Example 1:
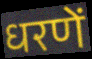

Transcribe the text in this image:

धरणें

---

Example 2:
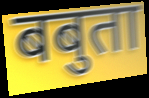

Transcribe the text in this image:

बबुता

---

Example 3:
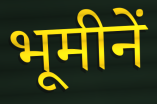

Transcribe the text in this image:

भूमीनें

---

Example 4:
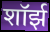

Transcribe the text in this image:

शॉर्झ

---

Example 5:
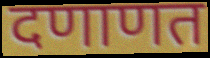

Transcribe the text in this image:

दणाणत